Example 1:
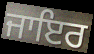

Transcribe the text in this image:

ਜਾਇਰ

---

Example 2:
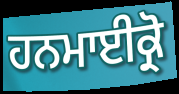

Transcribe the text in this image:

ਹਨਮਾਈਕ੍ਰੋ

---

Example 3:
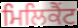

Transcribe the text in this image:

ਮਿਲਿਕੈਂਟ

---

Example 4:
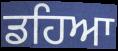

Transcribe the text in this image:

ਡਹਿਆ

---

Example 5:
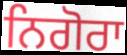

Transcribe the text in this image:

ਨਿਗੋਰਾ